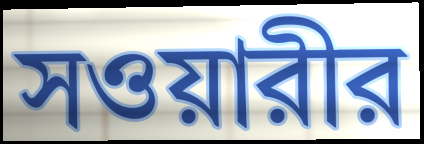
সওয়ারীর